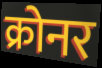
क्रोनर